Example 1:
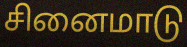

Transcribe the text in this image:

சினைமாடு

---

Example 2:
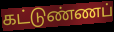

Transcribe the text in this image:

கட்டுண்ணப்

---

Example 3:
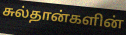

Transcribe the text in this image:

சுல்தான்களின்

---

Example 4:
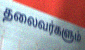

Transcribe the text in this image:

தலைவர்களும்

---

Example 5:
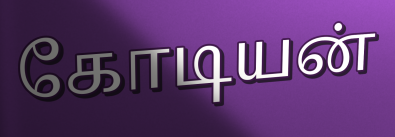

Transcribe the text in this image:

கோடியன்